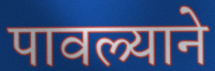
पावल्याने